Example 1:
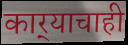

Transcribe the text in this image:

कार्याचाही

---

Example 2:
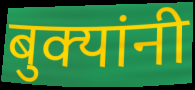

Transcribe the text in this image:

बुक्यांनी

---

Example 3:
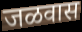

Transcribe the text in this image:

जळवास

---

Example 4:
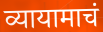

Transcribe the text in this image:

व्यायामाचं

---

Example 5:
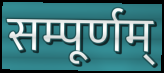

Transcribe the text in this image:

सम्पूर्णम्